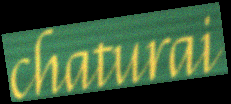
chaturai